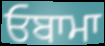
ਓਬਾਮਾ